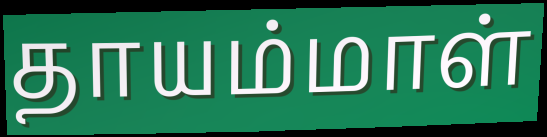
தாயம்மாள்